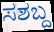
ಸಶಬ್ದ